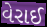
વેરાઈ